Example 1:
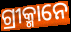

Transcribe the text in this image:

ଗ୍ରୀକ୍ମାନେ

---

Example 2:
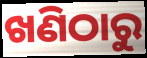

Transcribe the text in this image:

ଖଣିଠାରୁ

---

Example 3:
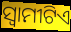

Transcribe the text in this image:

ସ୍ୱାମୀଟିଏ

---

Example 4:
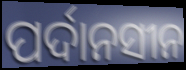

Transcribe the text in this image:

ପର୍ଦାନସୀନ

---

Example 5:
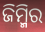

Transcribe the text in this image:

ଜିମ୍ମିର